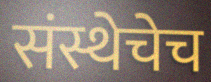
संस्थेचेच